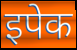
इपेक